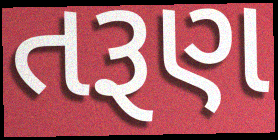
તરૂણ